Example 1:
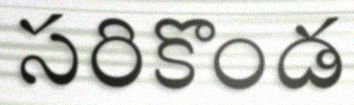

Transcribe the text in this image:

సరికొండ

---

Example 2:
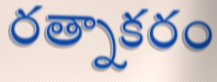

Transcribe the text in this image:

రత్నాకరం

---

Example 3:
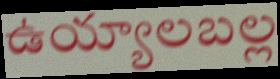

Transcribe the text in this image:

ఉయ్యాలబల్ల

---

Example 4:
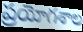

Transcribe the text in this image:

ప్రయోగశాల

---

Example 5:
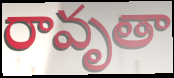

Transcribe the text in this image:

రావృతా